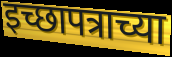
इच्छापत्राच्या